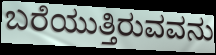
ಬರೆಯುತ್ತಿರುವವನು